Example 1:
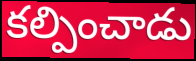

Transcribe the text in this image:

కల్పించాడు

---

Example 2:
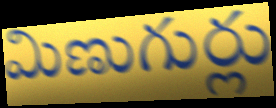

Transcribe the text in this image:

మిణుగుర్లు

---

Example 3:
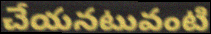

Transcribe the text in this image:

చేయనటువంటి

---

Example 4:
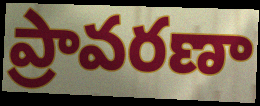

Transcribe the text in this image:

ప్రావరణా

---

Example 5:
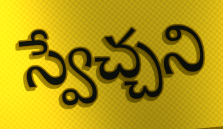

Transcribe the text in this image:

స్వేచ్చని